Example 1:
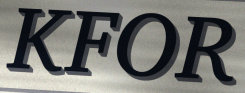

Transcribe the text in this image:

KFOR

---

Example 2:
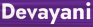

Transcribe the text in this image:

Devayani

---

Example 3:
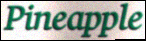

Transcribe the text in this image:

Pineapple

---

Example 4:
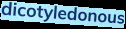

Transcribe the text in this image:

dicotyledonous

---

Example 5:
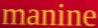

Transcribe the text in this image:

manine